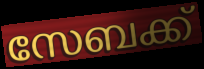
സേബക്ക്